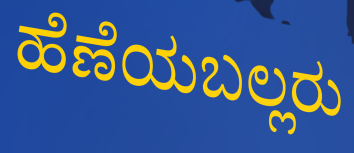
ಹೆಣೆಯಬಲ್ಲರು